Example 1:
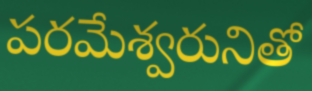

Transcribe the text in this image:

పరమేశ్వరునితో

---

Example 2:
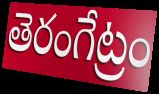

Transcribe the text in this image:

తెరంగేట్రం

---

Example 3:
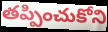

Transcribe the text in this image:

తప్పించుకోని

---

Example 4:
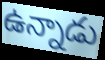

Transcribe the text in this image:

ఉన్నాడు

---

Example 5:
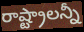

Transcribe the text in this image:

రాష్ట్రాలన్నీ